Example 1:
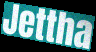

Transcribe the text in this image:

Jettha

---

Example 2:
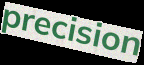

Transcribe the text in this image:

precision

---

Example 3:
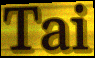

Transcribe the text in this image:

Tai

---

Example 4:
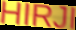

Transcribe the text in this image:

HIRJI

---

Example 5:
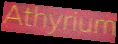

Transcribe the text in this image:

Athyrium